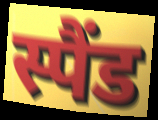
स्पैंड